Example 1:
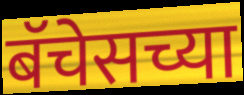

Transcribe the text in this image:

बॅचेसच्या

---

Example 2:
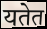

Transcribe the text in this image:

यतेत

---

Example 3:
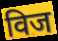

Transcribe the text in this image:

विज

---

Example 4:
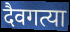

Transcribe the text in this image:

दैवगत्या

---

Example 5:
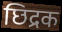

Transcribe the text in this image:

छिद्रक